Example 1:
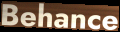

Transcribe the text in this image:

Behance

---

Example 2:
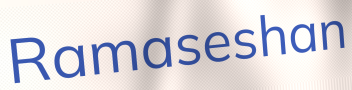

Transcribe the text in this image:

Ramaseshan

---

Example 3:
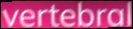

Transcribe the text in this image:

vertebral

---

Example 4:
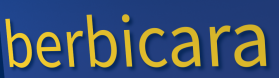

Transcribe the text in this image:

berbicara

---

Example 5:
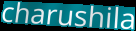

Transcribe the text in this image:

charushila